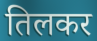
तिलकर